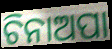
ଚିନାଅପା